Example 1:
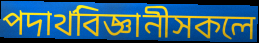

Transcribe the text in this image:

পদাৰ্থবিজ্ঞানীসকলে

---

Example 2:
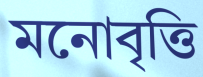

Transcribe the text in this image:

মনোবৃত্তি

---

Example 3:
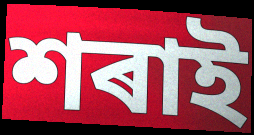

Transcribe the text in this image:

শৰাই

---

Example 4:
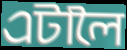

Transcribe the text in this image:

এটালৈ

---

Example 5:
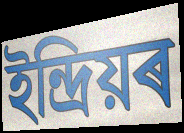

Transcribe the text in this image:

ইন্দ্ৰিয়ৰ